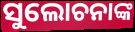
ସୁଲୋଚନାଙ୍କ